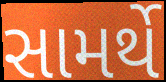
સામર્થે